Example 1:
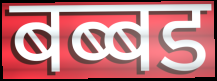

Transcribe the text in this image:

बब्बड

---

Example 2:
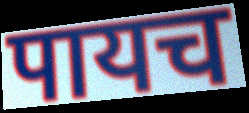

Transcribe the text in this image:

पायच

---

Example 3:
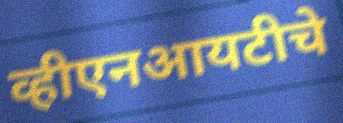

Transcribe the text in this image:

व्हीएनआयटीचे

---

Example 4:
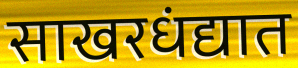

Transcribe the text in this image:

साखरधंद्यात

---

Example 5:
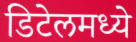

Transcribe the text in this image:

डिटेलमध्ये